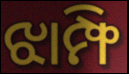
ଝାମ୍ଫି